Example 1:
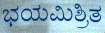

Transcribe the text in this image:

ಭಯಮಿಶ್ರಿತ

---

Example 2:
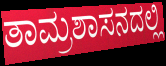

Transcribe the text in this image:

ತಾಮ್ರಶಾಸನದಲ್ಲಿ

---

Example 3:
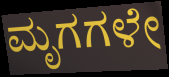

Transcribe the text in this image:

ಮೃಗಗಳೇ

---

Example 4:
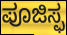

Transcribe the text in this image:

ಪೂಜಿಸ್ಫ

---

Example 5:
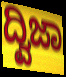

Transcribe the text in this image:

ದ್ವಿಜಾ